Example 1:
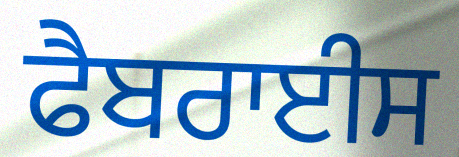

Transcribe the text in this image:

ਫੈਬਰਾਈਸ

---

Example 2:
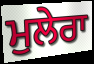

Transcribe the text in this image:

ਮੁਲੇਰਾ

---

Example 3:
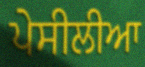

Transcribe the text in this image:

ਪੇਸੀਲੀਆ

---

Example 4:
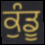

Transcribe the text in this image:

ਕੁੰਡੂ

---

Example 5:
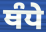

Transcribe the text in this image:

ਥੰਧੇ